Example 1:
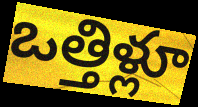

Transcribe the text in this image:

ఒత్తిళ్లూ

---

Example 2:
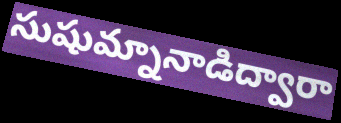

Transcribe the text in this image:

సుషుమ్నానాడిద్వారా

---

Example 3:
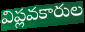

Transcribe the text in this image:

విప్లవకారుల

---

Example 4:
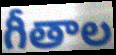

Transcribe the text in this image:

గీతాల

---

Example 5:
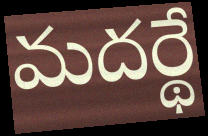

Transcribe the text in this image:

మదర్థే